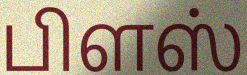
பிளஸ்